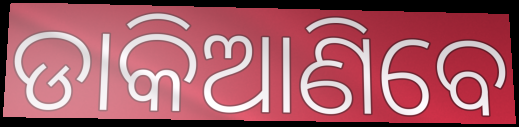
ଡାକିଆଣିବେ